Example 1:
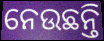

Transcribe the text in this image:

ନେଉଛନ୍ତି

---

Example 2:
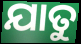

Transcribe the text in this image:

ଯାତୁ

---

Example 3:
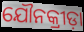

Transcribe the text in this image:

ଯୌନକ୍ରୀଡ଼ା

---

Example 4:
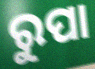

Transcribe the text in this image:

ରୁପା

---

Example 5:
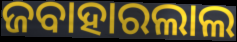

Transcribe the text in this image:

ଜବାହାରଲାଲ